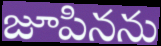
జూపినను